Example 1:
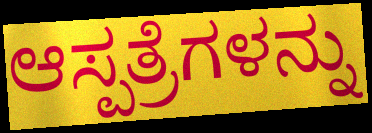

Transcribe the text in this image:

ಆಸ್ಪತ್ರೆಗಳನ್ನು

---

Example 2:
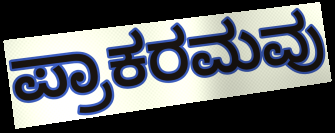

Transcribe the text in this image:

ಪ್ರಾಕರಮವು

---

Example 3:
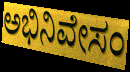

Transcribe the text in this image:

ಅಭಿನಿವೇಸಂ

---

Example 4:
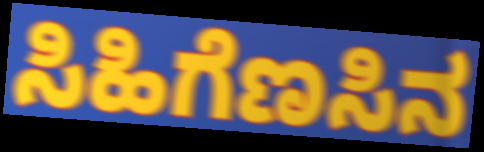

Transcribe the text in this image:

ಸಿಹಿಗೆಣಸಿನ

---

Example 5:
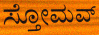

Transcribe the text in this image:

ಸ್ತೋಮವ್